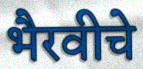
भैरवीचे